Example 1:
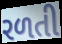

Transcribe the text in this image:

રળતી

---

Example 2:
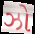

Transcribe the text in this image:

ઝો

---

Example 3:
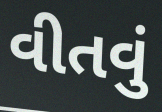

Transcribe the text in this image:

વીતવું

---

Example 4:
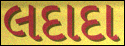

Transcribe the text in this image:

લદાદા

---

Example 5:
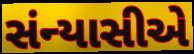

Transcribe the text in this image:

સંન્યાસીએ